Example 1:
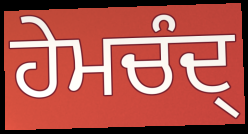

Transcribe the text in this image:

ਹੇਮਚੰਦ੍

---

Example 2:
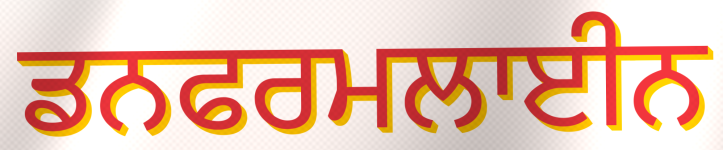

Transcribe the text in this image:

ਡਨਫਰਮਲਾਈਨ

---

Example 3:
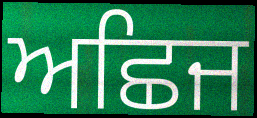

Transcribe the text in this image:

ਅਛਿਜ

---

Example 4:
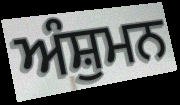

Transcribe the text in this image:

ਅੰਸ਼ੁਮਨ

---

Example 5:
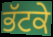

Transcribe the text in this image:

ਭੱਟਕੇ